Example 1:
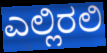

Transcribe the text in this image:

ಎಲ್ಲಿರಲಿ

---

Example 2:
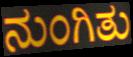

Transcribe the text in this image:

ನುಂಗಿತು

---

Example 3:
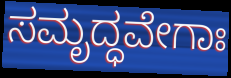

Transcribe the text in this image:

ಸಮೃದ್ಧವೇಗಾಃ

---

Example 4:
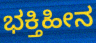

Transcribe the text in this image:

ಭಕ್ತಿಹೀನ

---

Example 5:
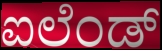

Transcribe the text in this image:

ಐಲೆಂಡ್